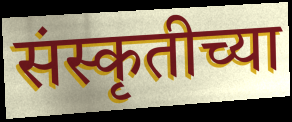
संस्कृतीच्या